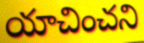
యాచించని